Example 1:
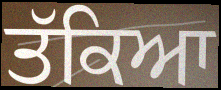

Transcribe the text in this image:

ਤੱਕਿਆ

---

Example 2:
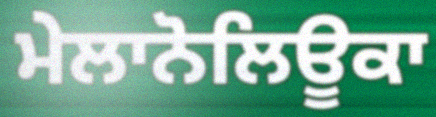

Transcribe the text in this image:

ਮੇਲਾਨੋਲਿਊਕਾ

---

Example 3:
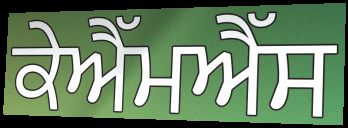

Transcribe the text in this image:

ਕੇਐੱਮਐੱਸ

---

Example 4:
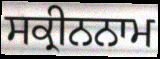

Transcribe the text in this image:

ਸਕ੍ਰੀਨਨਾਮ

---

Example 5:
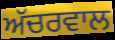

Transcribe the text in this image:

ਅੱਚਰਵਾਲ